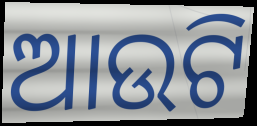
ଆଉଟି